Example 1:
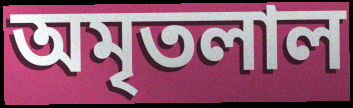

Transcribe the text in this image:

অমৃতলাল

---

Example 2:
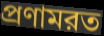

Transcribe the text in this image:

প্রণামরত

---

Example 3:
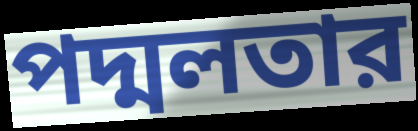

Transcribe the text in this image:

পদ্মলতার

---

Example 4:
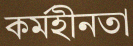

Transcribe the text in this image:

কর্মহীনতা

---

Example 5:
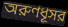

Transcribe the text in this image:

অরুণধূসর